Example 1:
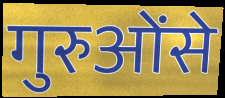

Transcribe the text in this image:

गुरुओंसे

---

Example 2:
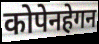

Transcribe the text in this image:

कोपेनहेगन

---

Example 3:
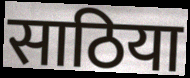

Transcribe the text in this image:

साठिया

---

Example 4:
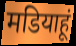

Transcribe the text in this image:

मडियाहूं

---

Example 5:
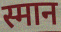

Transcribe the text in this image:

स्मान